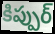
కిప్పుర్